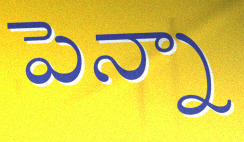
పెన్నా